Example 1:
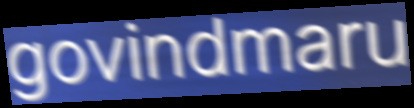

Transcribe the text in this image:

govindmaru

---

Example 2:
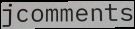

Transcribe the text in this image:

jcomments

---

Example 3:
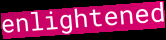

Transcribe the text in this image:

enlightened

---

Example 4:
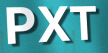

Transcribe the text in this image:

PXT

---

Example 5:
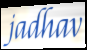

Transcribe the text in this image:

jadhav